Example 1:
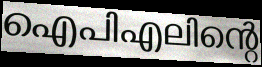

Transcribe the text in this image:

ഐപിഎലിന്റെ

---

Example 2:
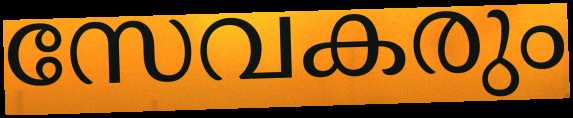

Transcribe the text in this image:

സേവകരും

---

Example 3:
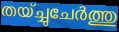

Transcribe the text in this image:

തയ്ച്ചുചേർത്തു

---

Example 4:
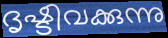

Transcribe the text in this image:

ദൃഷ്ടിവക്കുന്നു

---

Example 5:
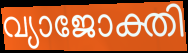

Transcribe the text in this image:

വ്യാജോക്തി